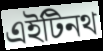
এইটিনথ